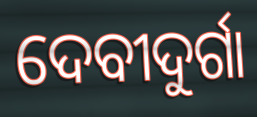
ଦେବୀଦୁର୍ଗା